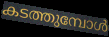
കടത്തുമ്പോൾ